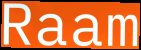
Raam